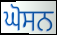
ਘੋਸਨ